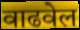
वाढवेल